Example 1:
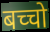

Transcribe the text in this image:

बच्चो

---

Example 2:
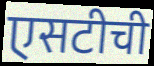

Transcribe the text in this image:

एसटीची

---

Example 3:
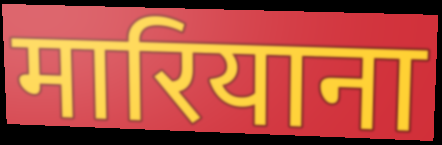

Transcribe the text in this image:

मारियाना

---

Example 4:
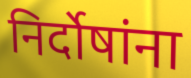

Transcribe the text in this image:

निर्दोषांना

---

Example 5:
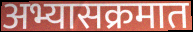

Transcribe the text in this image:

अभ्यासक्रमात